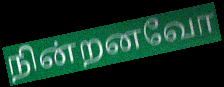
நின்றனவோ